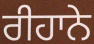
ਰੀਹਾਨੇ